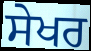
ਸੇਖਰ